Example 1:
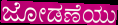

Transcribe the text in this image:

ಜೋಡಣೆಯು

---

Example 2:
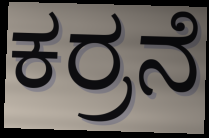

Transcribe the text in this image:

ಕರ್ರನೆ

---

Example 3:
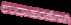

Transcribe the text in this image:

ಉದಾಹರಣೆಗಾಗಿ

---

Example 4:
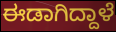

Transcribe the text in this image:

ಈಡಾಗಿದ್ದಾಳೆ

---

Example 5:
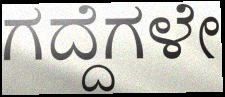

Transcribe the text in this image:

ಗದ್ದೆಗಳೇ